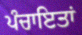
ਪੰਚਾਇਤਾਂ